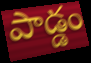
పాడ్డం